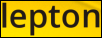
lepton